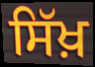
ਸਿੱਖ਼